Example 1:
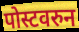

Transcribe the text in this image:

पोस्टवरुन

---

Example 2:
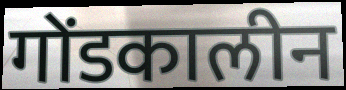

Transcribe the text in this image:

गोंडकालीन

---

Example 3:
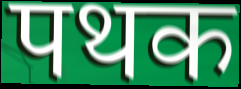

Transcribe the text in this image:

पथक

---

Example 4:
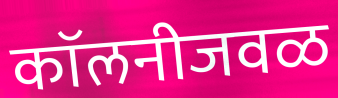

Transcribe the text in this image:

कॉलनीजवळ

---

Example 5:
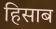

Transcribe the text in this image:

हिसाब